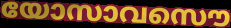
യോസാവസൌ